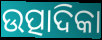
ଉତ୍ପାଦିକା